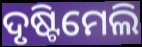
ଦୃଷ୍ଟିମେଲି